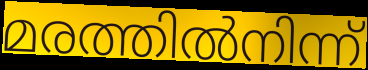
മരത്തിൽനിന്ന്